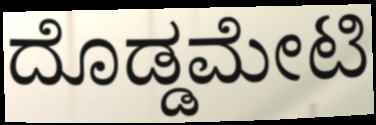
ದೊಡ್ಡಮೇಟಿ